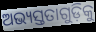
ଅଭ୍ୟସ୍ତତାଗୁଡ଼ିକୁ